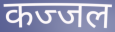
कज्जल